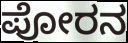
ಪೋರನ